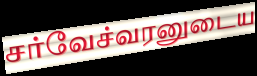
சர்வேச்வரனுடைய